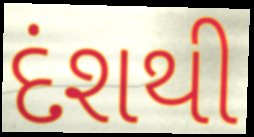
દંશથી